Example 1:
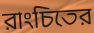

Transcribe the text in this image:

রাংচিতের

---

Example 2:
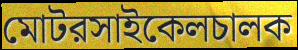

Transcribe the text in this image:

মোটরসাইকেলচালক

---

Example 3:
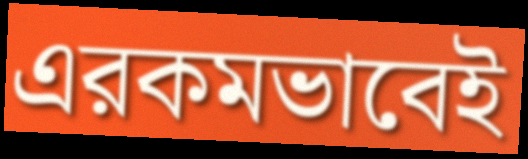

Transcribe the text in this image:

এরকমভাবেই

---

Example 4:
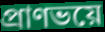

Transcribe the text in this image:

প্রাণভয়ে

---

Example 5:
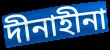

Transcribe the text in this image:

দীনাহীনা